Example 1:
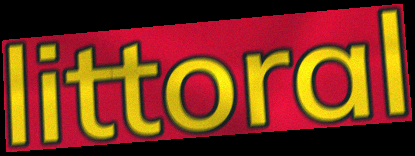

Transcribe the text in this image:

littoral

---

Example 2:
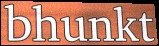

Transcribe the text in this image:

bhunkt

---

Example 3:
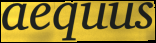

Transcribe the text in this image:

aequus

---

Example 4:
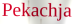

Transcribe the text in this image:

Pekachja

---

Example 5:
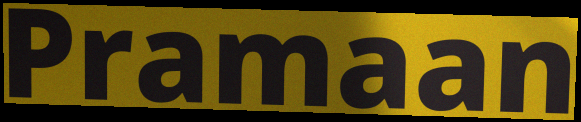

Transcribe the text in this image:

Pramaan